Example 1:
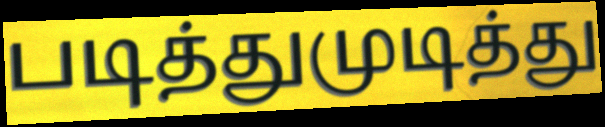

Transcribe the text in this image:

படித்துமுடித்து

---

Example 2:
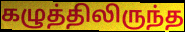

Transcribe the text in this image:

கழுத்திலிருந்த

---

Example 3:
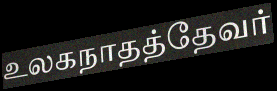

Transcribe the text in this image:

உலகநாதத்தேவர்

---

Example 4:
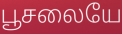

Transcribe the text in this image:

பூசலையே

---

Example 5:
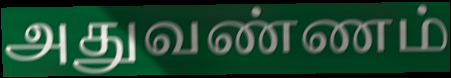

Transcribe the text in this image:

அதுவண்ணம்